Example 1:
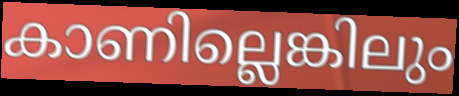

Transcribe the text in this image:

കാണില്ലെങ്കിലും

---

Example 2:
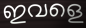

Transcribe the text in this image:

ഇവളെ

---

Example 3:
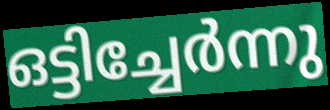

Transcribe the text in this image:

ഒട്ടിച്ചേർന്നു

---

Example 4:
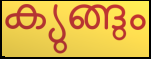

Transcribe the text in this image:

ക്യുങ്ങും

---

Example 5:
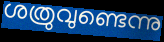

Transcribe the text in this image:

ശത്രുവുണ്ടെന്നു